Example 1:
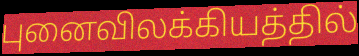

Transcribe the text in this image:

புனைவிலக்கியத்தில்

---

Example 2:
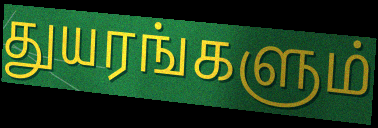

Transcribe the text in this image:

துயரங்களும்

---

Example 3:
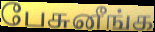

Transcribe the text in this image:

பேசுனீங்க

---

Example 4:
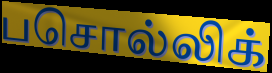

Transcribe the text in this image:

பசொல்லிக்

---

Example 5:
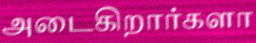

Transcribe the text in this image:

அடைகிறார்களா